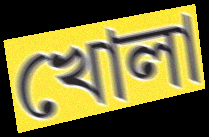
খোলা